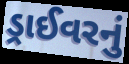
ડ્રાઈવરનું